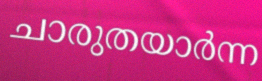
ചാരുതയാർന്ന